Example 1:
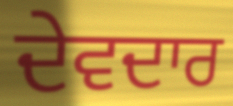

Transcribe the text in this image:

ਦੇਵਦਾਰ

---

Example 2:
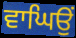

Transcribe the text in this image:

ਵਾਘਿਉਂ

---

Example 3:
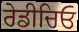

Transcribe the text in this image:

ਰੇਡੀਚਿਓ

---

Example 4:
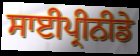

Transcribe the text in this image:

ਸਾਈਪ੍ਰੀਨੀਡੇ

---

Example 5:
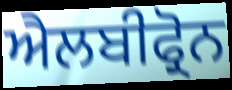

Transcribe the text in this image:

ਐਲਬੀਫ੍ਰੋਨ